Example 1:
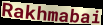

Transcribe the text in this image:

Rakhmabai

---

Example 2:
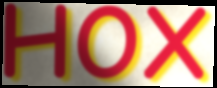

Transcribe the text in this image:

HOX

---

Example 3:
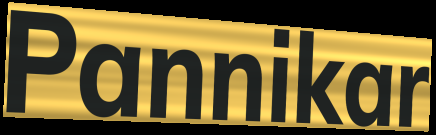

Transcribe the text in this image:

Pannikar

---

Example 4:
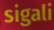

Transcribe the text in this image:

sigali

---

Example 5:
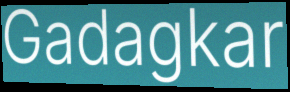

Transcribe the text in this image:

Gadagkar